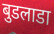
बुडलाडा